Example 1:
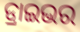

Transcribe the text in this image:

ଡ୍ରାଇଭର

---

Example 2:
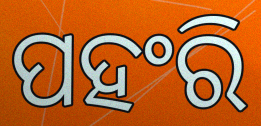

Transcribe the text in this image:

ପହଂରି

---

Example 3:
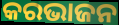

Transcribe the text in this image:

କରଭାଜନ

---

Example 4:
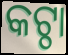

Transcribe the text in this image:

କଟ୍ଠା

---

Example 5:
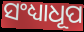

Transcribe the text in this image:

ସଂଧ୍ୟାଧୂପ